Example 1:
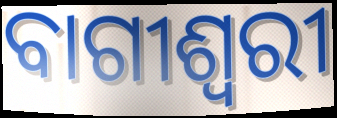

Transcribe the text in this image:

ବାଗୀଶ୍ୱରୀ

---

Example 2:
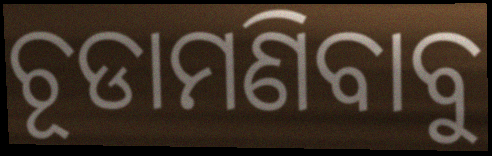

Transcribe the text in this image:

ଚୂଡାମଣିବାବୁ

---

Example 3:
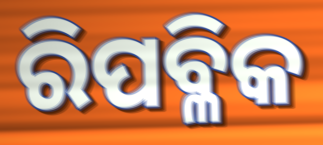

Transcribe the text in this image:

ରିପବ୍ଳିକ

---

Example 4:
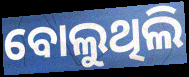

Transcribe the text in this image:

ବୋଲୁଥିଲି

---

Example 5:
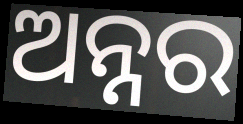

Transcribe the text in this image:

ଅନ୍ନର